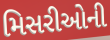
મિસરીઓની